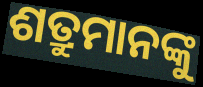
ଶତ୍ରୁମାନଙ୍କୁ